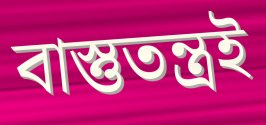
বাস্তুতন্ত্রই